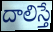
దాలిస్తే